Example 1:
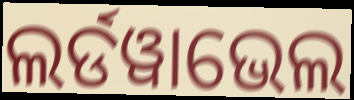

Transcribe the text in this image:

ଲର୍ଡୱାଭେଲ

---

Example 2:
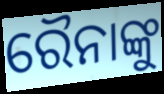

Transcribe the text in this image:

ରୈନାଙ୍କୁ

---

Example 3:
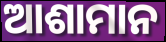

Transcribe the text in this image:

ଆଶାମାନ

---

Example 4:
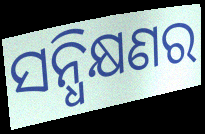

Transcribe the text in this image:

ସନ୍ଧିକ୍ଷଣର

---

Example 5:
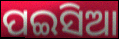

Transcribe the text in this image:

ପଇସିଆ